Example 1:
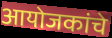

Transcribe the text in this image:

आयोजकांचे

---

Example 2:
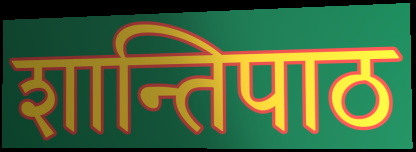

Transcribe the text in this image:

शान्तिपाठ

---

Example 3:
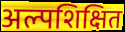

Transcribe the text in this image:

अल्पशिक्षित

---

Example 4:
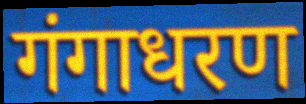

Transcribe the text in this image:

गंगाधरण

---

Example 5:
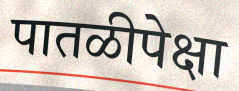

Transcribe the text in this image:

पातळीपेक्षा